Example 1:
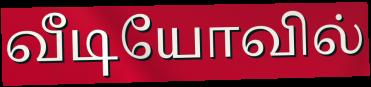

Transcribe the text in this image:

வீடியோவில்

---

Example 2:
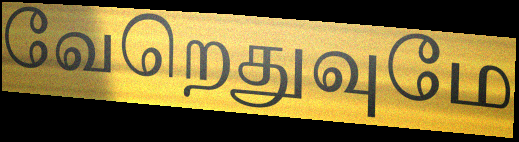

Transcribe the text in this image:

வேறெதுவுமே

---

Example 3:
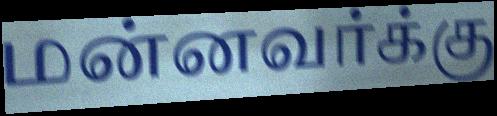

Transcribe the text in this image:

மன்னவர்க்கு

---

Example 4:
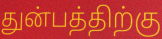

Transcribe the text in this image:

துன்பத்திற்கு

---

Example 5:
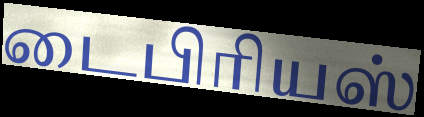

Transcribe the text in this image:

டைபிரியஸ்